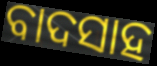
ବାଦସାହ